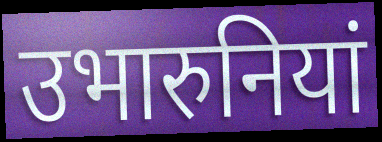
उभारुनियां